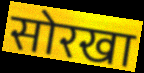
सोरखा